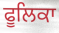
ਫੂਲਿਕਾ